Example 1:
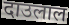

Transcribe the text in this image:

दाउलाल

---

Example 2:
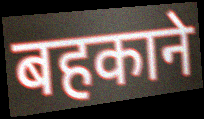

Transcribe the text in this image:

बहकाने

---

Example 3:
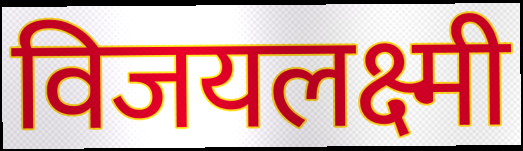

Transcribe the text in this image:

विजयलक्ष्मी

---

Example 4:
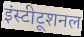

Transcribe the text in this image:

इंस्टीटूशनल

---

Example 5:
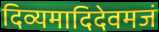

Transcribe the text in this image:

दिव्यमादिदेवमजं